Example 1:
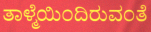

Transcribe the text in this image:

ತಾಳ್ಮೆಯಿಂದಿರುವಂತೆ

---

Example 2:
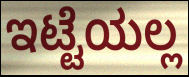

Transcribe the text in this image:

ಇಟ್ಟೆಯಲ್ಲ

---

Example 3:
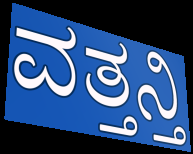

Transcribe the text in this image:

ವತ್ತನ್ತಿ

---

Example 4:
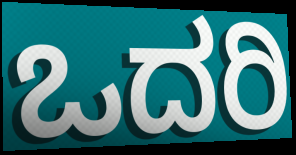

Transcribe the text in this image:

ಒದರಿ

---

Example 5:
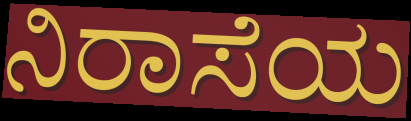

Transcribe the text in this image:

ನಿರಾಸೆಯ